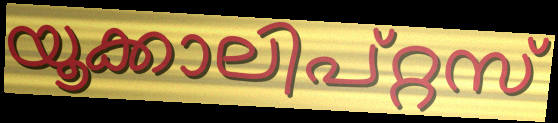
യൂക്കാലിപ്റ്റസ്